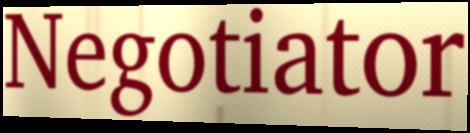
Negotiator